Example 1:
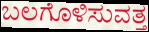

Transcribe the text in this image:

ಬಲಗೊಳಿಸುವತ್ತ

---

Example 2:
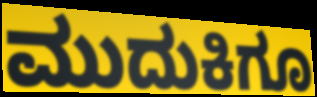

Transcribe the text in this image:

ಮುದುಕಿಗೂ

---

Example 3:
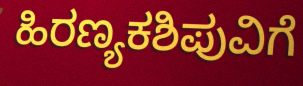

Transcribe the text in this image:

ಹಿರಣ್ಯಕಶಿಪುವಿಗೆ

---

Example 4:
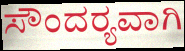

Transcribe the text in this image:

ಸೌಂದರ‍್ಯವಾಗಿ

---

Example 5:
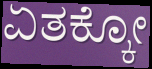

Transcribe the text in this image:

ಏತಕ್ಕೋ